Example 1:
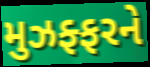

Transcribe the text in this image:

મુઝફ્ફરને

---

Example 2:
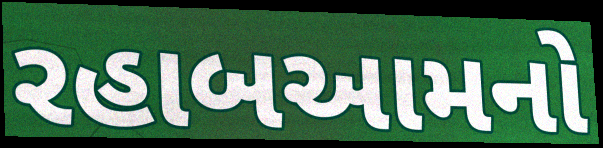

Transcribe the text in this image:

રહાબઆમનો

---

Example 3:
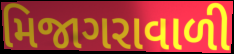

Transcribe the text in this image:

મિજાગરાવાળી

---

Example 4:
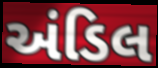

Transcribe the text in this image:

અંડિલ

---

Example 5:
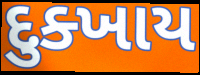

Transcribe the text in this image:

દુક્ખાય